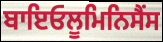
ਬਾਇਓਲੂਮਿਨਿਸੈਂਸ